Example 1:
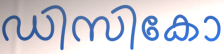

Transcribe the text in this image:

ഡിസികോ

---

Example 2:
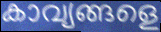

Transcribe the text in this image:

കാവ്യങ്ങളെ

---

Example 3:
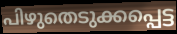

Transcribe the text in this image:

പിഴുതെടുക്കപ്പെട്ട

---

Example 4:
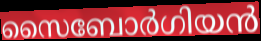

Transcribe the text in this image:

സൈബോർഗിയൻ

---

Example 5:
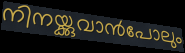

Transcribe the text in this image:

നിനയ്ക്കുവാൻപോലും